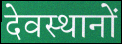
देवस्थानों